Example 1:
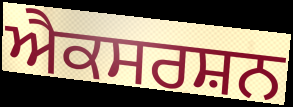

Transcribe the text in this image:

ਐਕਸਰਸ਼ਨ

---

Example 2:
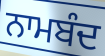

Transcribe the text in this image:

ਨਾਮਬੰਦ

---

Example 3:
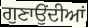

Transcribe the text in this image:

ਗੁਣਾਉਂਦੀਆਂ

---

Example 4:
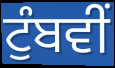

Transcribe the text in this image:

ਟੁੰਬਵੀਂ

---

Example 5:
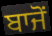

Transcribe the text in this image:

ਬਾਜੋਂ